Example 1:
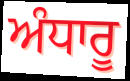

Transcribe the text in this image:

ਅੰਧਾਰੂ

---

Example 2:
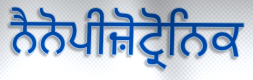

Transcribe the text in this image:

ਨੈਨੋਪੀਜ਼ੋਟ੍ਰੋਨਿਕ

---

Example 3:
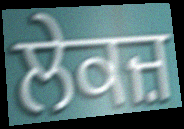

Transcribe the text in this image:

ਲੇਕਜ਼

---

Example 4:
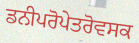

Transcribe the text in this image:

ਡਨੀਪਰੋਪੇਤਰੋਵਸਕ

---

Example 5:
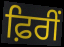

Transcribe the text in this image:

ਫ਼ਿਰੀਂ